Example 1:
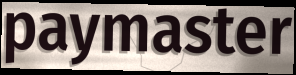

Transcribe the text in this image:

paymaster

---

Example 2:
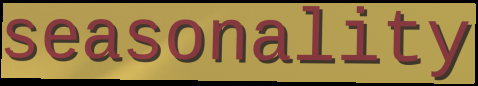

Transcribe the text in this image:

seasonality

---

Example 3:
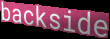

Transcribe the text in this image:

backside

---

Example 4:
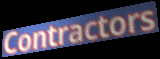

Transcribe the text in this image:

Contractors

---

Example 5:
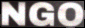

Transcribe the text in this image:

NGO